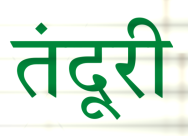
तंदूरी